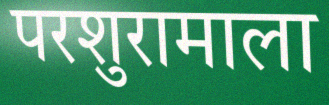
परशुरामाला